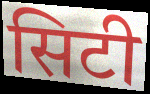
सिटी